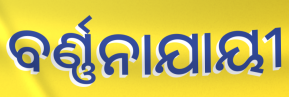
ବର୍ଣ୍ଣନାଯାୟୀ